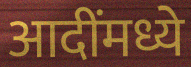
आदींमध्ये